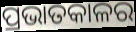
ପ୍ରଭାତକାଳର